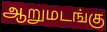
ஆறுமடங்கு